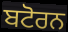
ਬਟੋਰਨ